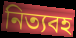
নিত্যবহ